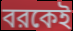
বরকেই